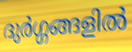
ദുർഗ്ഗങ്ങളിൽ